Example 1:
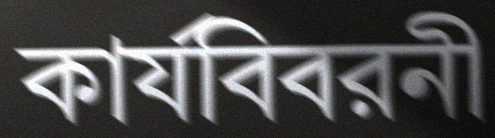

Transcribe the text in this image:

কার্যবিবরনী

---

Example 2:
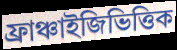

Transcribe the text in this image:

ফ্রাঞ্চাইজিভিত্তিক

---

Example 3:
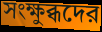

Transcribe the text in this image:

সংক্ষুব্ধদের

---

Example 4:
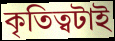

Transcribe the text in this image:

কৃতিত্বটাই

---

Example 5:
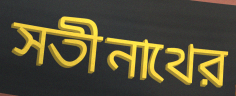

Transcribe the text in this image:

সতীনাথের